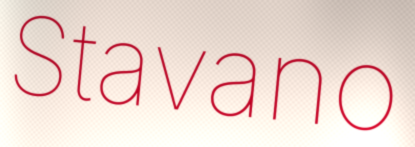
Stavano